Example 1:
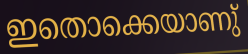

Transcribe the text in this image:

ഇതൊക്കെയാണു്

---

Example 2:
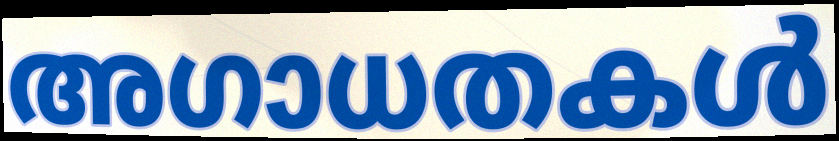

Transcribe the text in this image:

അഗാധതകൾ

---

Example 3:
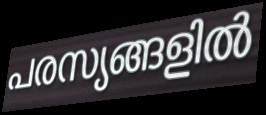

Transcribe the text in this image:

പരസ്യങ്ങളിൽ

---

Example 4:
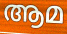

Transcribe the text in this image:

ആമ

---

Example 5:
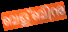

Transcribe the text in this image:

ബള്ബിനു